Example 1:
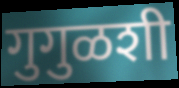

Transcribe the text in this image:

गुगुळशी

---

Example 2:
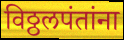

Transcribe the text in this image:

विठ्ठलपंतांना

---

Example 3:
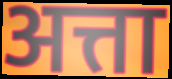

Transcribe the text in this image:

अत्ता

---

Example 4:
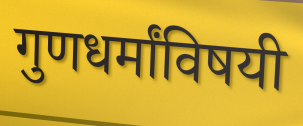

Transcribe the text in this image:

गुणधर्मांविषयी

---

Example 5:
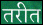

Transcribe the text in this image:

तरीत